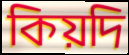
কিয়দি